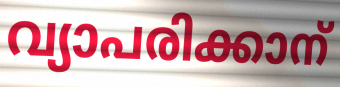
വ്യാപരിക്കാന്